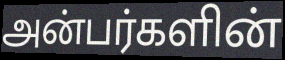
அன்பர்களின்